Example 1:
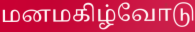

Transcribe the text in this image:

மனமகிழ்வோடு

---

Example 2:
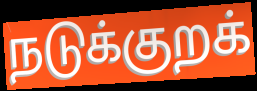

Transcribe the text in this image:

நடுக்குறக்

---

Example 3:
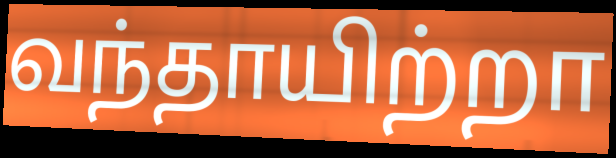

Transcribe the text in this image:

வந்தாயிற்றா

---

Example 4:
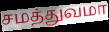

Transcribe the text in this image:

சமத்துவமா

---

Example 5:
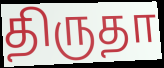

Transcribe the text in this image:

திருதா